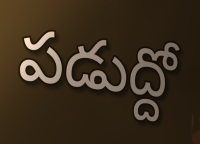
పడుద్దో